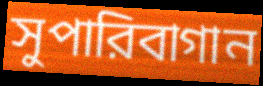
সুপারিবাগান